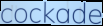
cockade